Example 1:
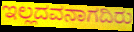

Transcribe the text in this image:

ಇಲ್ಲದವನಾಗದಿರು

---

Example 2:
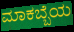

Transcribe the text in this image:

ಮಾಕಬ್ಬೆಯ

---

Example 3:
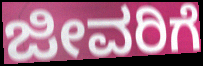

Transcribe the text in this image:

ಜೀವರಿಗೆ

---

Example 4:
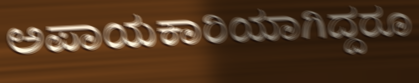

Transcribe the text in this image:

ಅಪಾಯಕಾರಿಯಾಗಿದ್ದರೂ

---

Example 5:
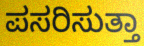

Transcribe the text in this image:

ಪಸರಿಸುತ್ತಾ